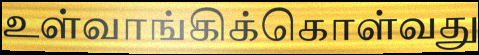
உள்வாங்கிக்கொள்வது